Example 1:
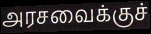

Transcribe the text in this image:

அரசவைக்குச்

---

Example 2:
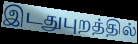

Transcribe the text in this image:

இடதுபுறத்தில்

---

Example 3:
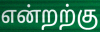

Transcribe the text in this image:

என்றற்கு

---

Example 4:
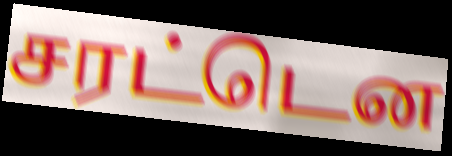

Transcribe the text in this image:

சரட்டென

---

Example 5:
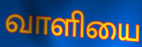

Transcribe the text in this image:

வாளியை